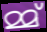
മ്മ്